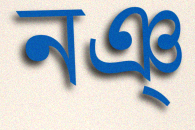
নঞ্